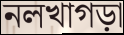
নলখাগড়া